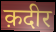
क़दीर